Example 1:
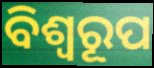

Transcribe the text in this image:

ବିଶ୍ବରୂପ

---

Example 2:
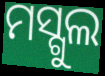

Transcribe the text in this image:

ମସ୍ଗୁଲ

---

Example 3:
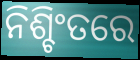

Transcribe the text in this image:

ନିଶ୍ଚିଂତରେ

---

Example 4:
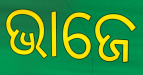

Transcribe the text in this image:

ଭାଜେ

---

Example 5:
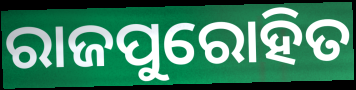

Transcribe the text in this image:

ରାଜପୁରୋହିତ